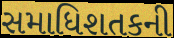
સમાધિશતકની